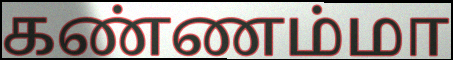
கண்ணம்மா